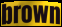
brown